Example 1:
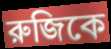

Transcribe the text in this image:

রুজিকে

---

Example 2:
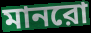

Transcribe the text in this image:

মানরো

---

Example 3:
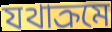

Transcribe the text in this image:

যথাক্রমে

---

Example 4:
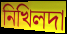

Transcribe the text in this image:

নিখিলদা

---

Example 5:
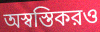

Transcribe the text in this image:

অস্বস্তিকরও